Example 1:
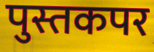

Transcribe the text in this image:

पुस्तकपर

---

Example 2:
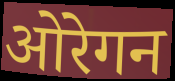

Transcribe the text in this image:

ओरेगन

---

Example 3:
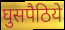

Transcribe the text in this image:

घुसपैठिये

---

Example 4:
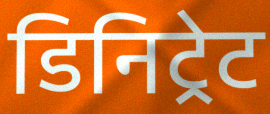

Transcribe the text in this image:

डिनिट्रेट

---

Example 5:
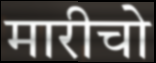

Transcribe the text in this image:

मारीचो